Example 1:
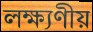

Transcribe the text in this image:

লক্ষ্যণীয়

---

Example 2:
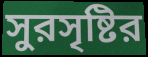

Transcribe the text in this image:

সুরসৃষ্টির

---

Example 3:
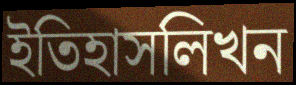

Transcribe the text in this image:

ইতিহাসলিখন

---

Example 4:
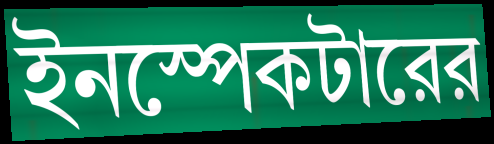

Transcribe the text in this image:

ইনস্পেকটারের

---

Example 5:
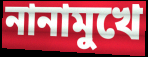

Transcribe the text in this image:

নানামুখে